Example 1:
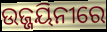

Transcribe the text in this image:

ଉଜ୍ଜୟିନୀରେ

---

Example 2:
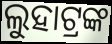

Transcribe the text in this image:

ଲୁହାଟ୍ରଙ୍କ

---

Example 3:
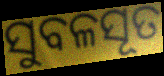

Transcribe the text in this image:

ସୁବଳସୂତ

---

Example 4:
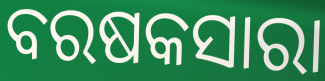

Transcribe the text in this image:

ବରଷକସାରା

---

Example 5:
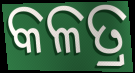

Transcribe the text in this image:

କଳତ୍ର